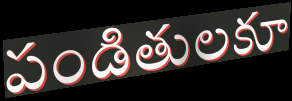
పండితులకూ